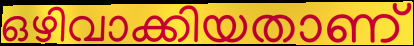
ഒഴിവാക്കിയതാണ്